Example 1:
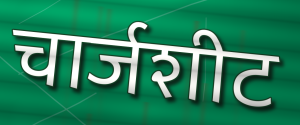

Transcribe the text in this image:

चार्जशीट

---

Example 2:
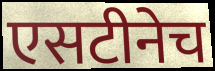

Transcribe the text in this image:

एसटीनेच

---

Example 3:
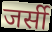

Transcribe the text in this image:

जर्सी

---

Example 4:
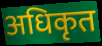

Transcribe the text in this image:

अधिकृत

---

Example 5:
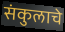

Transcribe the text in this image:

संकुलाचे